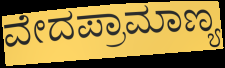
ವೇದಪ್ರಾಮಾಣ್ಯ